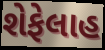
શેફેલાહ